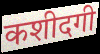
कशीदगी